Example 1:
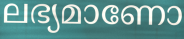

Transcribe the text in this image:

ലഭ്യമാണോ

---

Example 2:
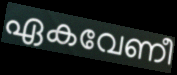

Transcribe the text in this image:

ഏകവേണീ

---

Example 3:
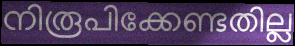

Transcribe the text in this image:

നിരൂപിക്കേണ്ടതില്ല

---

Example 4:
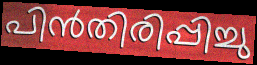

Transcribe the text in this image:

പിൻതിരിപ്പിച്ചു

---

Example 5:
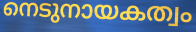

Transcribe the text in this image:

നെടുനായകത്വം